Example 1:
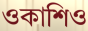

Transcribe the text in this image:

ওকাশিও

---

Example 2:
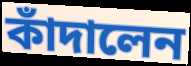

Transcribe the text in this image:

কাঁদালেন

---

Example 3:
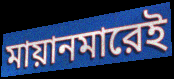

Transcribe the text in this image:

মায়ানমারেই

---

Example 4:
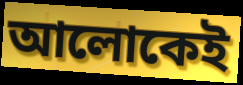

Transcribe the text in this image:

আলোকেই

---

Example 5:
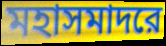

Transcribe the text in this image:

মহাসমাদরে